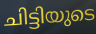
ചിട്ടിയുടെ